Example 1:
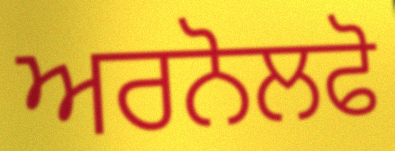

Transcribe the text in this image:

ਅਰਨੋਲਫੋ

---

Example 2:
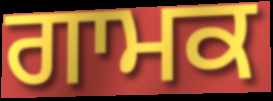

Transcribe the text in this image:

ਗਾਮਕ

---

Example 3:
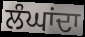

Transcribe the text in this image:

ਲੰਘਾਂਦਾ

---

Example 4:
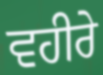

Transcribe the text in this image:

ਵਹੀਰੇ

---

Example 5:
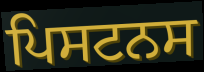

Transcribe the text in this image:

ਪਿਸਟਨਸ